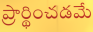
ప్రార్థించడమే